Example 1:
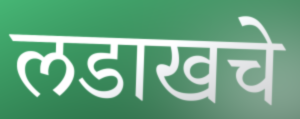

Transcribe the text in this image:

लडाखचे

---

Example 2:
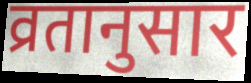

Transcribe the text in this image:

व्रतानुसार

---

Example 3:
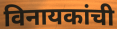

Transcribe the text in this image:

विनायकांची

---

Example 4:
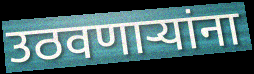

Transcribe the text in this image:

उठवणाऱ्यांना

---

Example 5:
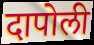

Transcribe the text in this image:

दापोली